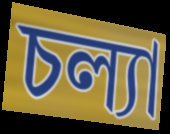
চল্যা